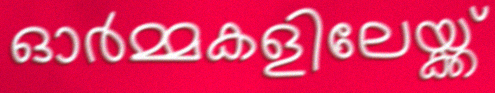
ഓർമ്മകളിലേയ്ക്ക്